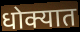
धोक्यात